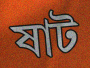
ষাট